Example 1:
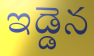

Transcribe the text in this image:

ఇడ్డెన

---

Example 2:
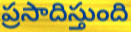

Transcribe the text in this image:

ప్రసాదిస్తుంది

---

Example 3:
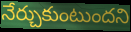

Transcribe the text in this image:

నేర్చుకుంటుందని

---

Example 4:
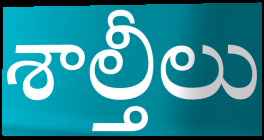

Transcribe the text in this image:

శాల్తీలు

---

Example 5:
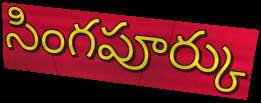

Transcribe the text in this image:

సింగపూర్కు